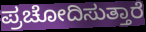
ಪ್ರಚೋದಿಸುತ್ತಾರೆ